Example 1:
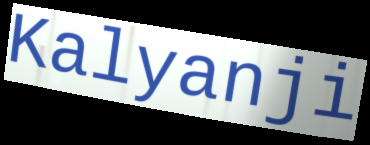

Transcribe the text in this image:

Kalyanji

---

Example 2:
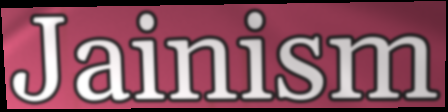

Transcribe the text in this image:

Jainism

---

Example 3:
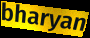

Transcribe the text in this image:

bharyan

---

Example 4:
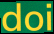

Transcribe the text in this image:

doi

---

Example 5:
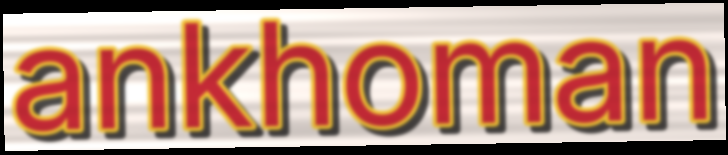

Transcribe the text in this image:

ankhoman